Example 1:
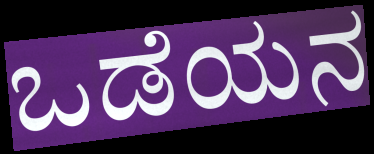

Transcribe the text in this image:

ಒಡೆಯನ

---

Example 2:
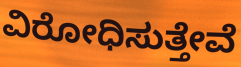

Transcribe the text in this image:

ವಿರೋಧಿಸುತ್ತೇವೆ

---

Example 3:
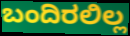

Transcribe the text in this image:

ಬಂದಿರಲಿಲ್ಲ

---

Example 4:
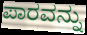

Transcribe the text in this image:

ಪಾರವನ್ನು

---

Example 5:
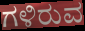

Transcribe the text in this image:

ಗಳಿರುವ